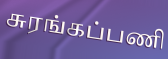
சுரங்கப்பணி